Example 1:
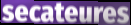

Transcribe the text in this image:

secateures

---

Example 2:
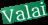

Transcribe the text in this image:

Valai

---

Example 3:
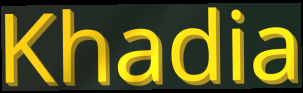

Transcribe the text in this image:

Khadia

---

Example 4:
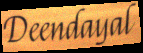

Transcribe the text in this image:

Deendayal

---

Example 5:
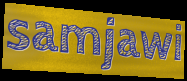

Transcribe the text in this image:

samjawi